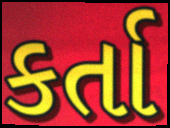
કર્તા